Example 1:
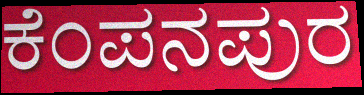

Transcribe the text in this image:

ಕೆಂಪನಪುರ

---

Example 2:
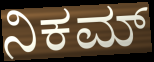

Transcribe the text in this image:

ನಿಕಮ್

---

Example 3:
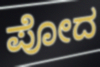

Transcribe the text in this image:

ಪೋದ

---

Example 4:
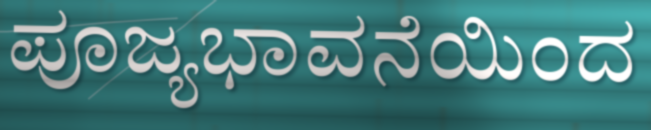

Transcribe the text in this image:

ಪೂಜ್ಯಭಾವನೆಯಿಂದ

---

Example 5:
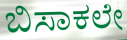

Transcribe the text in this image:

ಬಿಸಾಕಲೇ